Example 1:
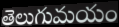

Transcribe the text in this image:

తెలుగుమయం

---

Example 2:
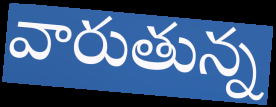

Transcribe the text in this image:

వారుతున్న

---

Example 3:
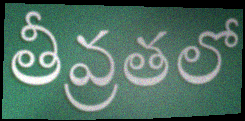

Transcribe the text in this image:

తీవ్రతలో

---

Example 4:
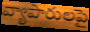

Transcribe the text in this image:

వ్యాపారులపై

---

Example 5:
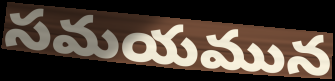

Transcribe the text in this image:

సమయమున